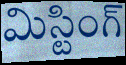
మిస్టింగ్